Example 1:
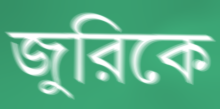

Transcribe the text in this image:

জুরিকে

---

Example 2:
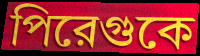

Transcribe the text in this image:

পিরেগুকে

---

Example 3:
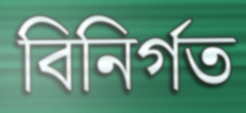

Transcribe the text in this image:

বিনির্গত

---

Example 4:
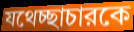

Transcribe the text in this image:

যথেচ্ছাচারকে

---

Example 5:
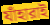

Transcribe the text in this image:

যাঁহারাই